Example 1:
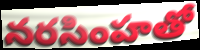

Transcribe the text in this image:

నరసింహతో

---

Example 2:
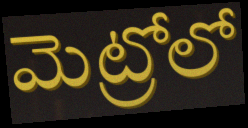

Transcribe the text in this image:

మెట్రోలో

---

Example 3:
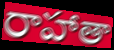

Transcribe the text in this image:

రాహాతా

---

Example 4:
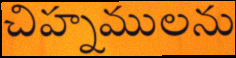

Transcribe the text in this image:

చిహ్నములను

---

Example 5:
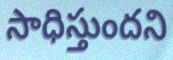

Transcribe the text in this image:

సాధిస్తుందని